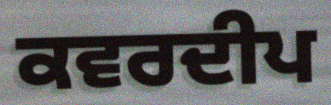
ਕਵਰਦੀਪ